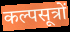
कल्पसूत्रों